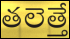
తలెత్తే